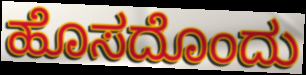
ಹೊಸದೊಂದು